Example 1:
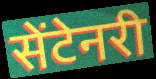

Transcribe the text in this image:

सेंटेनरी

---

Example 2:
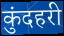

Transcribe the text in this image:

कुंदहरी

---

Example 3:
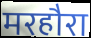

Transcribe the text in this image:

मरहौरा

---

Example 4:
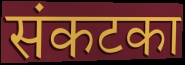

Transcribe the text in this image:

संकटका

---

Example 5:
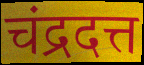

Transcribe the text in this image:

चंद्रदत्त